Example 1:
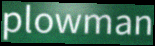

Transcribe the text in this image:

plowman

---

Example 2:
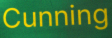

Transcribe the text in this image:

Cunning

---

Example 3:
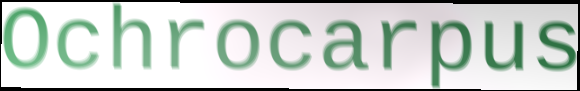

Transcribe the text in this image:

Ochrocarpus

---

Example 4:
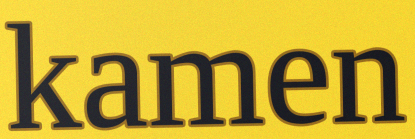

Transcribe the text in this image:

kamen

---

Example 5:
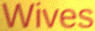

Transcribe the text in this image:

Wives